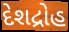
દેશદ્રોહ